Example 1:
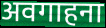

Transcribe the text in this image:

अवगाहना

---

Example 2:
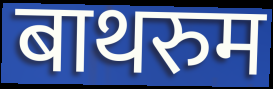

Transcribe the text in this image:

बाथरुम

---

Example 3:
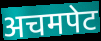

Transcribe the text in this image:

अचमपेट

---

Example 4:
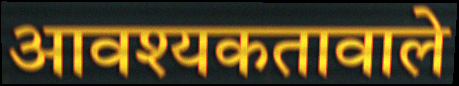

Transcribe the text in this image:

आवश्यकतावाले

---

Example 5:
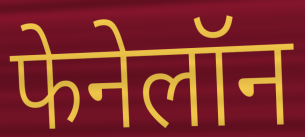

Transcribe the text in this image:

फेनेलॉन